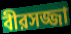
বীরসজ্জা